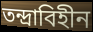
তন্দ্রাবিহীন